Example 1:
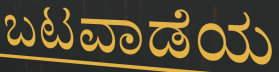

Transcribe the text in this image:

ಬಟವಾಡೆಯ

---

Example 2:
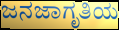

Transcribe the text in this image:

ಜನಜಾಗೃತಿಯ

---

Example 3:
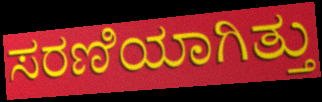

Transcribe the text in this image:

ಸರಣಿಯಾಗಿತ್ತು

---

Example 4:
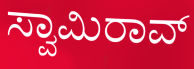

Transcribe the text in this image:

ಸ್ವಾಮಿರಾವ್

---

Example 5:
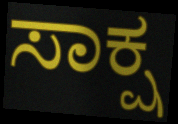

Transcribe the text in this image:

ಸಾಕ್ಷ